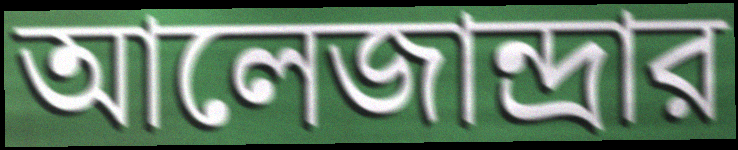
আলেজান্দ্রার